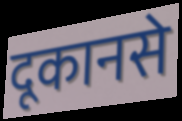
दूकानसे